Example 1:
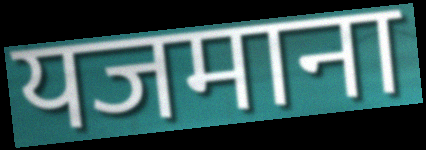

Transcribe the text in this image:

यजमाना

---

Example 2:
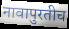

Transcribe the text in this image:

नावापुरतीच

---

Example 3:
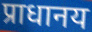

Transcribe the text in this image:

प्राधानय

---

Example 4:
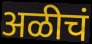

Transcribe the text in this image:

अळीचं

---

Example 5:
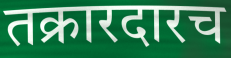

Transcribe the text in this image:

तक्रारदारच